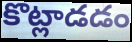
కొట్లాడడం